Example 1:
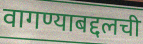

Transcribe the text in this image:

वागण्याबद्दलची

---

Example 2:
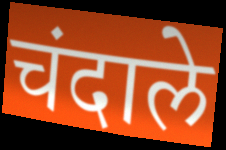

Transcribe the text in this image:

चंदाले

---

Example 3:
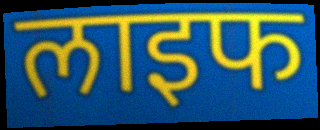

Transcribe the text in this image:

लाइफ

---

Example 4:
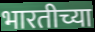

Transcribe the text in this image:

भारतीच्‍या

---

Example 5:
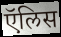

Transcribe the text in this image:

ऍलिस